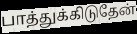
பாத்துக்கிடுதேன்